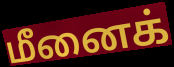
மீனைக்